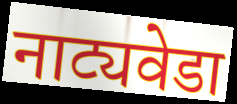
नाट्यवेडा